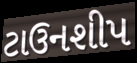
ટાઉનશીપ